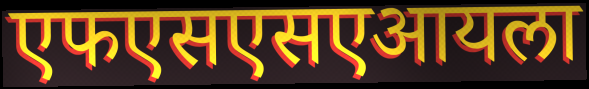
एफएसएसएआयला